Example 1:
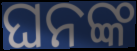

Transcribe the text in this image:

ଘନଙ୍କ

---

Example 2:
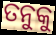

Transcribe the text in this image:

ତନୁକୁ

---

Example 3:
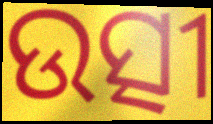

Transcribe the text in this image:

ଉତ୍ସୀ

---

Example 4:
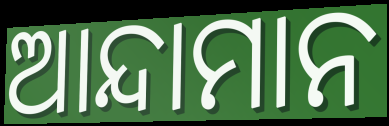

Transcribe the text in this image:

ଆନ୍ଦାମାନ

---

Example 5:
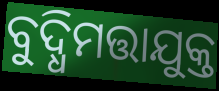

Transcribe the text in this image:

ବୁଦ୍ଧିମତ୍ତାଯୁକ୍ତ